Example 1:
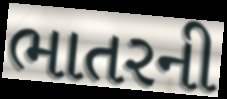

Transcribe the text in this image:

ભાતરની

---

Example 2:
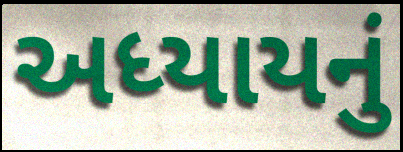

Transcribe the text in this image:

અધ્યાયનું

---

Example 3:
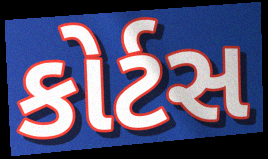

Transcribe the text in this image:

કોર્ટસ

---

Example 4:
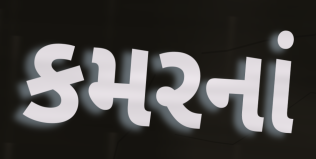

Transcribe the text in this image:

કમરનાં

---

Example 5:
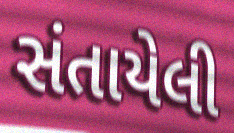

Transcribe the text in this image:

સંતાયેલી